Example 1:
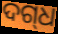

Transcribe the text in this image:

ଦଗ୍‍ଧ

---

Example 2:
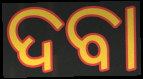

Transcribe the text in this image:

ଦବା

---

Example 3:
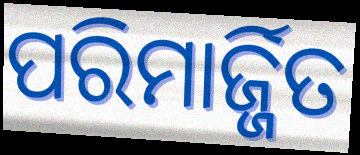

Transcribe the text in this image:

ପରିମାର୍ଜ୍ଜିତ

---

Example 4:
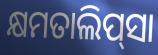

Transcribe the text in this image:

କ୍ଷମତାଲିପ୍‍ସା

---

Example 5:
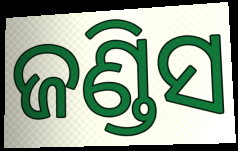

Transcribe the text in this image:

ଜଣ୍ଡିସ